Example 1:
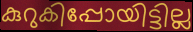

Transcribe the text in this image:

കുറുകിപ്പോയിട്ടില്ല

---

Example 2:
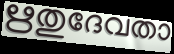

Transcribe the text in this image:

ഋതുദേവതാ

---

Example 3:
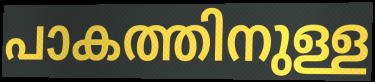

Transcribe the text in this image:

പാകത്തിനുള്ള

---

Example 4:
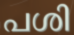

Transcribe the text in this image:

പശി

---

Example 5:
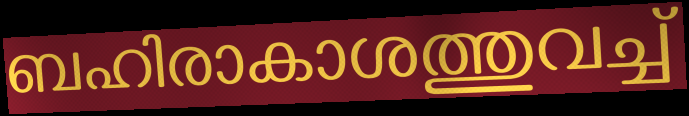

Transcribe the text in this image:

ബഹിരാകാശത്തുവച്ച്